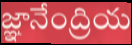
జ్ఞానేంద్రియ